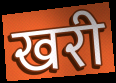
खरी